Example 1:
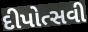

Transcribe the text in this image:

દીપોત્સવી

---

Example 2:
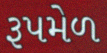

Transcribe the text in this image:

રૂપમેળ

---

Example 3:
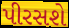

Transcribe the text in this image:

પીરસશે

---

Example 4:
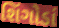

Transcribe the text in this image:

શિંગોડાં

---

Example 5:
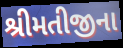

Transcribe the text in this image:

શ્રીમતીજીના